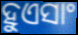
ହୁଏସାଂ